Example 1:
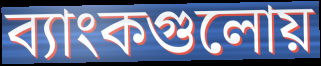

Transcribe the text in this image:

ব্যাংকগুলোয়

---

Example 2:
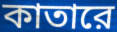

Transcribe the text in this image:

কাতারে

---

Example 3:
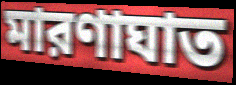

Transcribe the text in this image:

মারণাঘাত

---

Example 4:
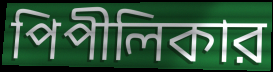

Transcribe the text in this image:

পিপীলিকার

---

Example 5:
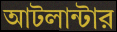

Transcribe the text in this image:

আটলান্টার